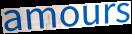
amours